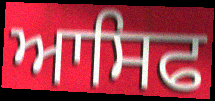
ਆਸਿਫ